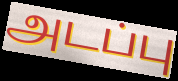
அடப்பு